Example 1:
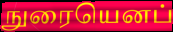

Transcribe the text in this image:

நுரையெனப்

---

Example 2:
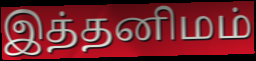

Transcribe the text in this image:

இத்தனிமம்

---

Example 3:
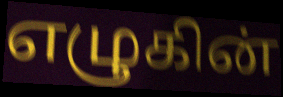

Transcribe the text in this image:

எழுகின்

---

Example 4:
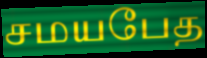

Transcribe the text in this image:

சமயபேத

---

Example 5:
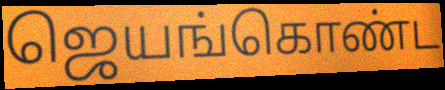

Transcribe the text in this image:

ஜெயங்கொண்ட